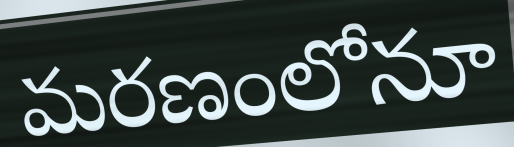
మరణంలోనూ